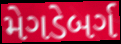
મેગડેબર્ગ